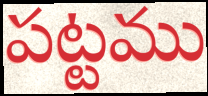
పట్టము